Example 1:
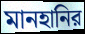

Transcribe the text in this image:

মানহানির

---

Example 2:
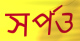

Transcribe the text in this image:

সর্পও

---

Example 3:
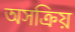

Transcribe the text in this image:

অসক্রিয়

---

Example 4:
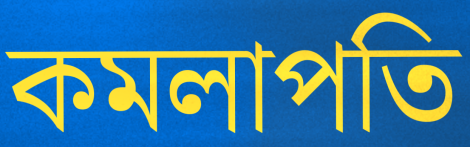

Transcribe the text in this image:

কমলাপতি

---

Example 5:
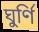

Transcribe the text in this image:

ঘুর্ণি